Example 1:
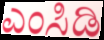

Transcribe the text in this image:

ಎಂಸಿಡಿ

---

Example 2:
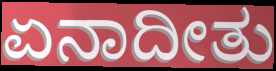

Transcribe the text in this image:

ಏನಾದೀತು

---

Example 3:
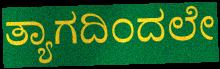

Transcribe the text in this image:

ತ್ಯಾಗದಿಂದಲೇ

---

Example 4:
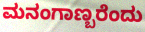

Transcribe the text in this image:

ಮನಂಗಾಣ್ಬರೆಂದು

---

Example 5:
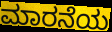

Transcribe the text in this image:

ಮಾರನೆಯ